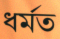
ধৰ্মত